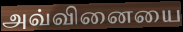
அவ்வினையை